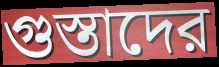
গুস্তাদের